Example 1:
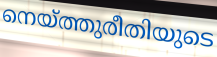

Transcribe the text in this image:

നെയ്ത്തുരീതിയുടെ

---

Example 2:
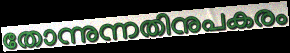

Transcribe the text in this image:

തോന്നുന്നതിനുപകരം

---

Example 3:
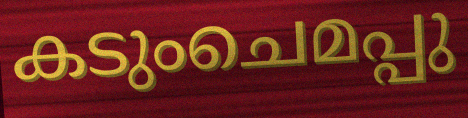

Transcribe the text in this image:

കടുംചെമപ്പു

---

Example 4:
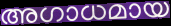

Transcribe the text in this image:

അഗാധമായ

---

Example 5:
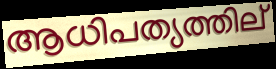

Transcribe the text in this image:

ആധിപത്യത്തില്